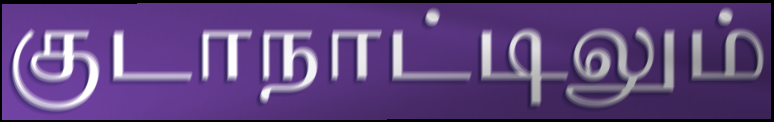
குடாநாட்டிலும்